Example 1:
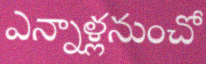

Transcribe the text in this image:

ఎన్నాళ్లనుంచో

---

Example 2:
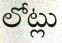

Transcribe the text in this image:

లోట్లు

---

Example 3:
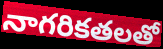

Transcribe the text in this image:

నాగరికతలతో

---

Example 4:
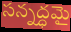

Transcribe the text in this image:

సన్నద్ధమై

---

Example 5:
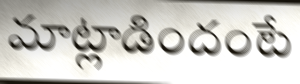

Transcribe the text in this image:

మాట్లాడిందంటే